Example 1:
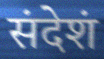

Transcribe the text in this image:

संदेशं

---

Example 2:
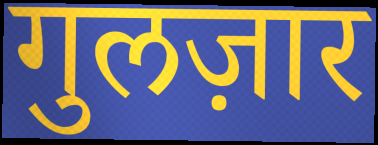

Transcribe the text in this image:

गुलज़ार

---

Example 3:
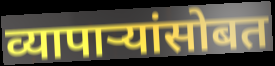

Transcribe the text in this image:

व्यापाऱ्यांसोबत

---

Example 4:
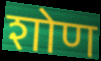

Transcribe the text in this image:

शोण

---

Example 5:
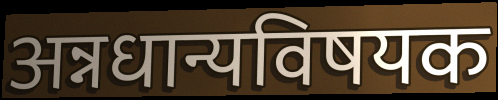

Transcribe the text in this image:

अन्नधान्यविषयक